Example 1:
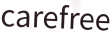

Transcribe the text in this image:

carefree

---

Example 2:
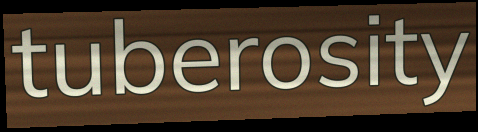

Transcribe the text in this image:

tuberosity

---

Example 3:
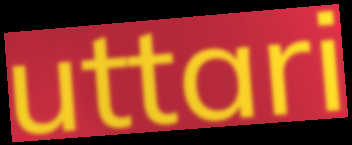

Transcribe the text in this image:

uttari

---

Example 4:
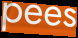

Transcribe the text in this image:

pees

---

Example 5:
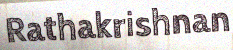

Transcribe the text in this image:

Rathakrishnan